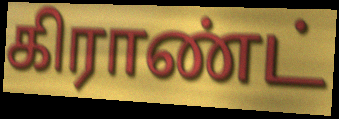
கிராண்ட்